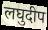
लघुदीप